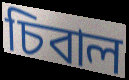
চিবাল